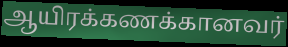
ஆயிரக்கணக்கானவர்